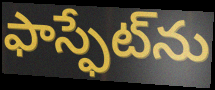
ఫాస్ఫేట్‌ను